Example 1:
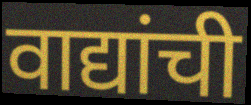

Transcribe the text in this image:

वाद्यांची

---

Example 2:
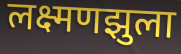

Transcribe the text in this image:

लक्ष्मणझुला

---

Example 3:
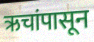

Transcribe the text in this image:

ऋचांपासून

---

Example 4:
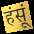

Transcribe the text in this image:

हंसूं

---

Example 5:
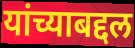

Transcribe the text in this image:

यांच्याबद्दल